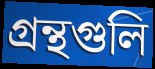
গ্রন্থগুলি